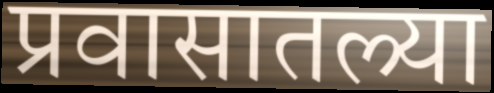
प्रवासातल्या